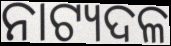
ନାଟ୍ୟଦଳ